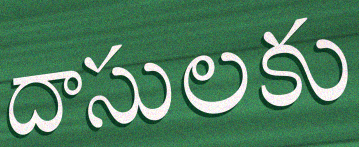
దాసులకు